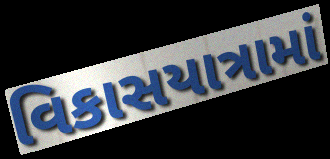
વિકાસયાત્રામાં